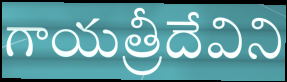
గాయత్రీదేవిని